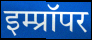
इम्प्रॉपर